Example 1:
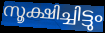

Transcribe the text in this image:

സൂക്ഷിച്ചിട്ടും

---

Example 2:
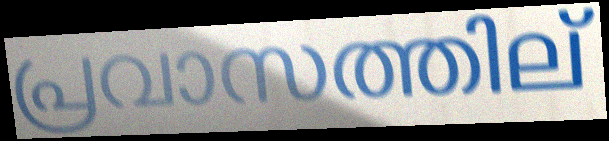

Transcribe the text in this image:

പ്രവാസത്തില്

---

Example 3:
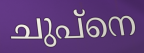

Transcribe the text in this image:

ചുപ്നെ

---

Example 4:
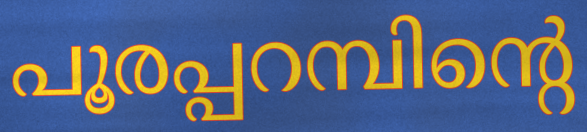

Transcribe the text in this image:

പൂരപ്പറമ്പിന്റെ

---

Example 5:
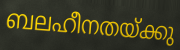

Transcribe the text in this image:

ബലഹീനതയ്ക്കു